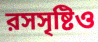
রসসৃষ্টিও